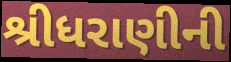
શ્રીધરાણીની